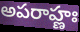
అపరాహ్ణః